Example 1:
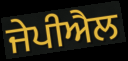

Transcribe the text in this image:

ਜੇਪੀਐਲ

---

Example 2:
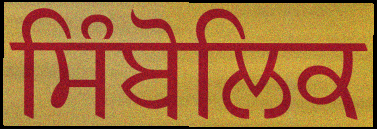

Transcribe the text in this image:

ਸਿੰਬੋਲਿਕ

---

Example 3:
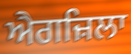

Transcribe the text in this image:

ਐਗਜ਼ਿਲਾ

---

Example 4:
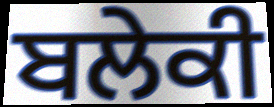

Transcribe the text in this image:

ਬਲੇਕੀ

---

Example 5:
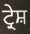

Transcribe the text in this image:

ਟ੍ਰੇਸ਼